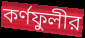
কর্ণফুলীর